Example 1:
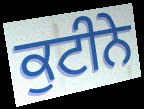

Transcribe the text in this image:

ਕੁਟੀਨੇ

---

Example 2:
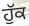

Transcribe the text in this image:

ਹੁੱਕ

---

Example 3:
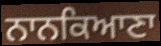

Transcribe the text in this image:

ਨਾਨਕਿਆਣਾ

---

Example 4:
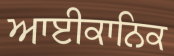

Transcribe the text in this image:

ਆਈਕਾਨਿਕ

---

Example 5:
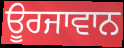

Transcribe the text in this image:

ਊਰਜਾਵਾਨ